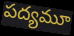
పద్యమూ